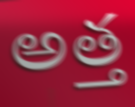
అత్త